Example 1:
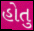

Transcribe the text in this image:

હોતુ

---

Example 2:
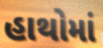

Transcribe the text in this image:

હાથોમાં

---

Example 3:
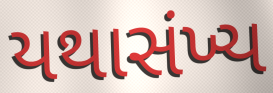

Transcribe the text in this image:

યથાસંખ્ય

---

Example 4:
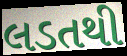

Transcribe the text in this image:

લડતથી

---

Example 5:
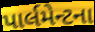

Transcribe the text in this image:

પાર્લમેન્ટના